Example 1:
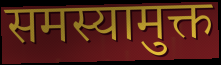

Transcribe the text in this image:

समस्यामुक्त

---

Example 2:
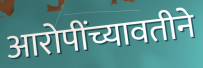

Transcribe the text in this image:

आरोपींच्यावतीने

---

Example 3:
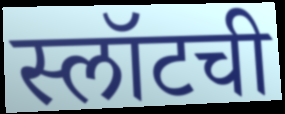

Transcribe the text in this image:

स्लॉटची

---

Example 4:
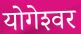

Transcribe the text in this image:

योगेश्‍वर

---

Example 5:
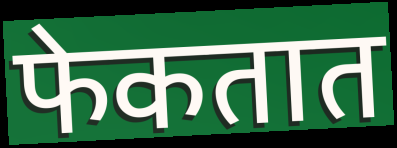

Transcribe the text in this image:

फेकतात